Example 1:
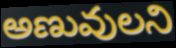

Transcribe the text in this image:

అణువులని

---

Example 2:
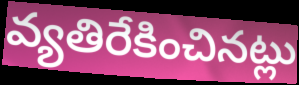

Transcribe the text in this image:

వ్యతిరేకించినట్లు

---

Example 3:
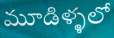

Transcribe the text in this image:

మూడిళ్ళలో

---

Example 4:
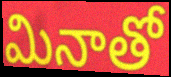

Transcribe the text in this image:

మినాతో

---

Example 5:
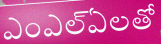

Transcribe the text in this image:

ఎంఎల్ఏలతో